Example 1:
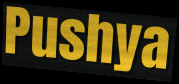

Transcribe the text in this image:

Pushya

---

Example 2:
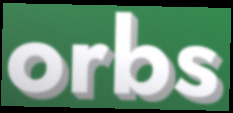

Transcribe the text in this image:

orbs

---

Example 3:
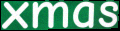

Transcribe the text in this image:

xmas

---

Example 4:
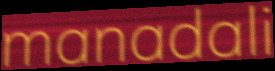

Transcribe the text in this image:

manadali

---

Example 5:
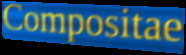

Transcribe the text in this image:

Compositae